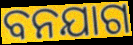
ବନଯାଗ